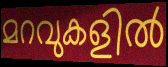
മറവുകളിൽ